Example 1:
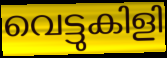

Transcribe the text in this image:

വെട്ടുകിളി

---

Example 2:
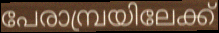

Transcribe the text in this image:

പേരാമ്പ്രയിലേക്ക്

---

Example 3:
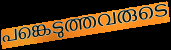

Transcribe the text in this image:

പങ്കെടുത്തവരുടെ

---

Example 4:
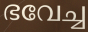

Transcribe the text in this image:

ഭവേച്ച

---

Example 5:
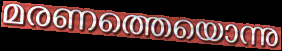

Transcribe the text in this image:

മരണത്തെയൊന്നു